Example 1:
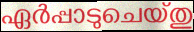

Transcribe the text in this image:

ഏർപ്പാടുചെയ്തു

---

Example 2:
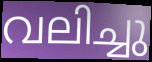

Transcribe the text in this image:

വലിച്ചു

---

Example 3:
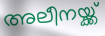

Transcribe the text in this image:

അലീനയ്ക്ക്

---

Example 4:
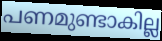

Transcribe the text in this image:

പണമുണ്ടാകില്ല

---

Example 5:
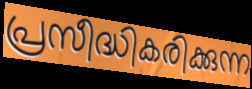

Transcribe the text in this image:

പ്രസീദ്ധികരിക്കുന്ന